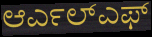
ಆರ್ಎಲ್ಎಫ್